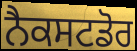
ਨੈਕਸਟਡੋਰ